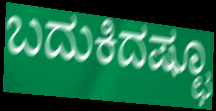
ಬದುಕಿದಷ್ಟೂ